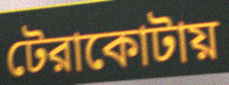
টেরাকোটায়